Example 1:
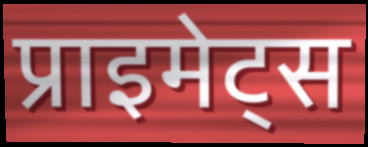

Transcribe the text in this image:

प्राइमेट्स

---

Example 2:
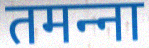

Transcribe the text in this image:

तमन्ना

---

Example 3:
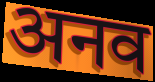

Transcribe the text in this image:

अनव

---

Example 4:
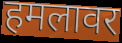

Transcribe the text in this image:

हमलावर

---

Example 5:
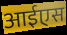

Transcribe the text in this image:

आईएस